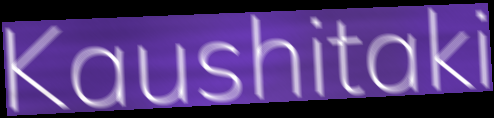
Kaushitaki